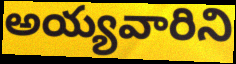
అయ్యవారిని